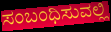
ಸಂಬಂಧಿಸುವಲ್ಲಿ